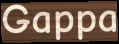
Gappa